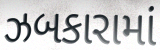
ઝબકારામાં